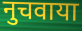
नुचवाया